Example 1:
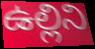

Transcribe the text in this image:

ఉల్లిని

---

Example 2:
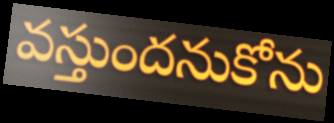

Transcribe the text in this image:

వస్తుందనుకోను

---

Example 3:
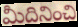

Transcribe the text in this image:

మీదినించి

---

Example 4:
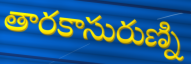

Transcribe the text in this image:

తారకాసురుణ్ని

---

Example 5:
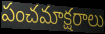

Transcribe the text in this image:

పంచమాక్షరాలు